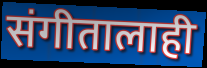
संगीतालाही